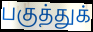
பகுத்துக்